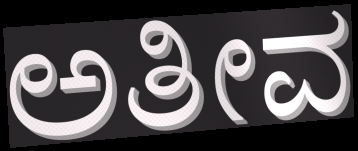
ಅತೀವ